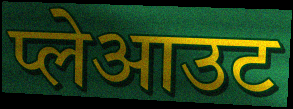
प्लेआउट